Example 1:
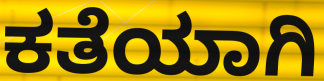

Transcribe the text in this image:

ಕತೆಯಾಗಿ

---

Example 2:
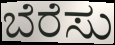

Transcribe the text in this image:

ಬೆರೆಸು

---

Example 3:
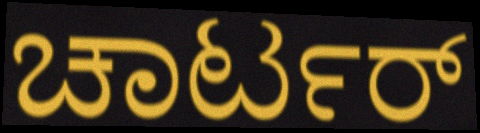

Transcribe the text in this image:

ಚಾರ್ಟರ್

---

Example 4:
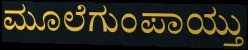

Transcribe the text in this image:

ಮೂಲೆಗುಂಪಾಯ್ತು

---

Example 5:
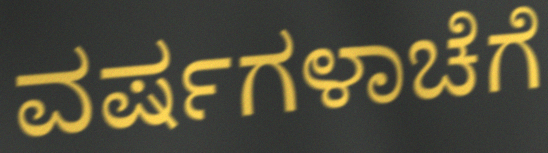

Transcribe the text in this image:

ವರ್ಷಗಳಾಚೆಗೆ